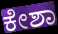
ಕೇಶಾ